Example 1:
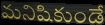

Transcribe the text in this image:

మనిషికుండే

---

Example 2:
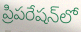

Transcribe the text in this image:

ప్రిపరేషన్‌లో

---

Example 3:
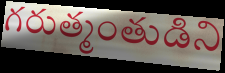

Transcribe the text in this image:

గరుత్మంతుడిని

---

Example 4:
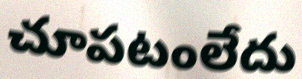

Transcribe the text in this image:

చూపటంలేదు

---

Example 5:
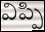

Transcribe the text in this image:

విప్పి